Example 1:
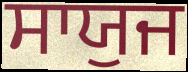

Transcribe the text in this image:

ਸਾਯੁਜ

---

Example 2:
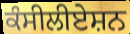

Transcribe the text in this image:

ਕੰਸੀਲੀਏਸ਼ਨ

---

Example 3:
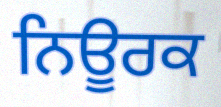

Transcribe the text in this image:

ਨਿਊਰਕ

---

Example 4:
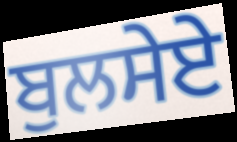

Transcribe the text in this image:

ਬੁਲਸੇਏ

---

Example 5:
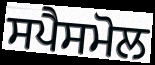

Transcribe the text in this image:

ਸਪੈਸਮੋਲ